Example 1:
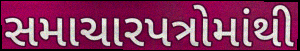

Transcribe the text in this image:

સમાચારપત્રોમાંથી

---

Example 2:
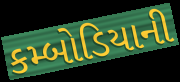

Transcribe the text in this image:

કમ્બોડિયાની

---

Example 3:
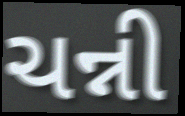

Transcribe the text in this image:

ચન્ની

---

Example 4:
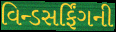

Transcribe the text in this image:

વિન્ડસર્ફિંગની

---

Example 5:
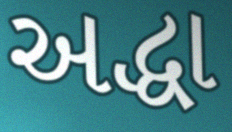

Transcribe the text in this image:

અદ્ધા